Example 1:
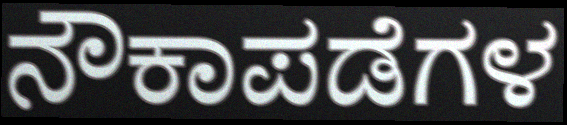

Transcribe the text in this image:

ನೌಕಾಪಡೆಗಳ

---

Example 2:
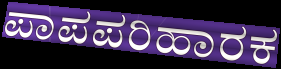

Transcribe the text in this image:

ಪಾಪಪರಿಹಾರಕ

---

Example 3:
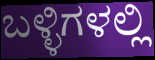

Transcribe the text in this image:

ಬಳ್ಳಿಗಳಲ್ಲಿ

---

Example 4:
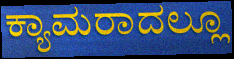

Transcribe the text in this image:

ಕ್ಯಾಮರಾದಲ್ಲೂ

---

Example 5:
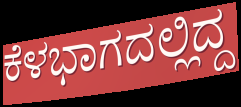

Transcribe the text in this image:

ಕೆಳಭಾಗದಲ್ಲಿದ್ದ